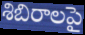
శిబిరాలపై